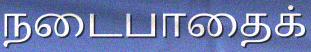
நடைபாதைக்